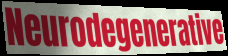
Neurodegenerative